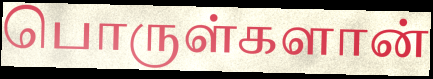
பொருள்களான்